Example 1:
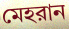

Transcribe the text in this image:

মেহরান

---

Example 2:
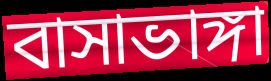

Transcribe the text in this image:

বাসাভাঙ্গা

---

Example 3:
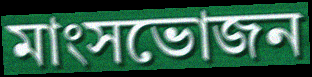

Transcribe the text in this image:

মাংসভোজন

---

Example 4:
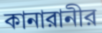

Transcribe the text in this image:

কানারানীর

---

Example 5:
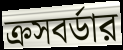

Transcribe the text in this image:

ক্রসবর্ডার